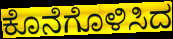
ಕೊನೆಗೊಳಿಸಿದ